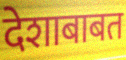
देशाबाबत